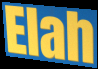
Elah